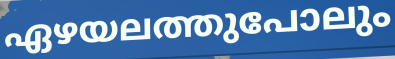
ഏഴയലത്തുപോലും